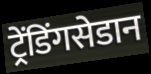
ट्रेंडिंगसेडान